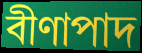
বীণাপাদ